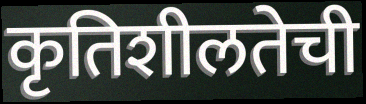
कृतिशीलतेची